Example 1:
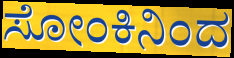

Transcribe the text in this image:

ಸೋಂಕಿನಿಂದ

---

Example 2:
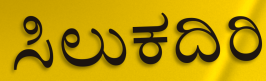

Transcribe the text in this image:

ಸಿಲುಕದಿರಿ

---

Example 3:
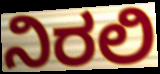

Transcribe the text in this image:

ನಿರಲಿ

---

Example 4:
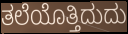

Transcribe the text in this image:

ತಲೆಯೊತ್ತಿದುದು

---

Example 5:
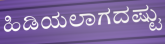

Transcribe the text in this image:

ಹಿಡಿಯಲಾಗದಷ್ಟು